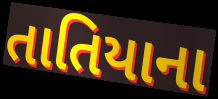
તાતિયાના